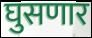
घुसणार